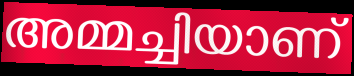
അമ്മച്ചിയാണ്